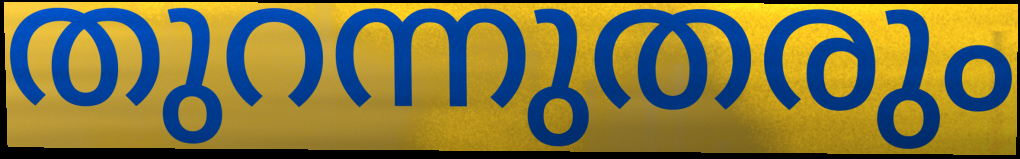
തുറന്നുതരും